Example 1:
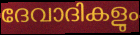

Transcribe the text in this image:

ദേവാദികളും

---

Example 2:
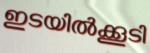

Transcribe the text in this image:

ഇടയിൽക്കൂടി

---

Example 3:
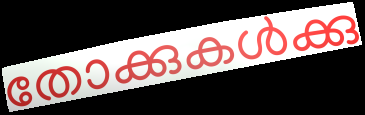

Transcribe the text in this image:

തോക്കുകൾക്കു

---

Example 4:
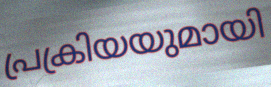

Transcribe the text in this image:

പ്രക്രിയയുമായി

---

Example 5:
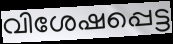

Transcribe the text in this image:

വിശേഷപ്പെട്ട